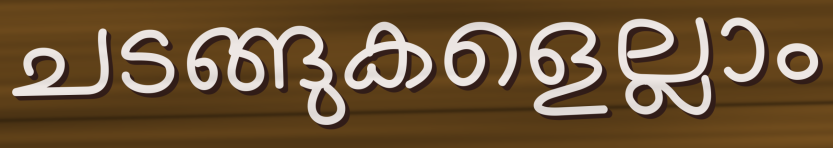
ചടങ്ങുകളെല്ലാം